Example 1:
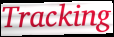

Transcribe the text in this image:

Tracking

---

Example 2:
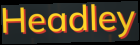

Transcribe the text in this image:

Headley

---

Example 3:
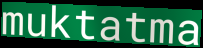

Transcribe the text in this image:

muktatma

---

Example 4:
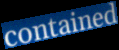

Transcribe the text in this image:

contained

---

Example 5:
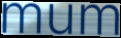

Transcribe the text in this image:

mum